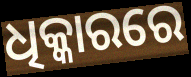
ଧିକ୍କାରରେ